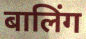
बालिंग